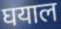
घयाल